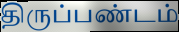
திருப்பண்டம்